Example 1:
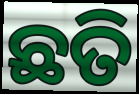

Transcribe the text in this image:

ଛତି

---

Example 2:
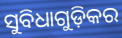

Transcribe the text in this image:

ସୁବିଧାଗୁଡ଼ିକର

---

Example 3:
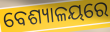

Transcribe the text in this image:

ବେଶ୍ୟାଳୟରେ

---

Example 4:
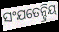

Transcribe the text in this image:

ସଂଯତେନ୍ଦ୍ରିୟ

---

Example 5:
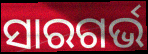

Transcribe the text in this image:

ସାରଗର୍ଭ